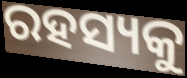
ରହସ୍ୟକୁ